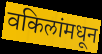
वकिलांमधून